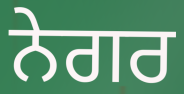
ਨੇਗਰ